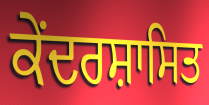
ਕੇਂਦਰਸ਼ਾਸਿਤ